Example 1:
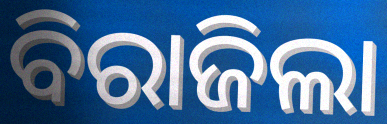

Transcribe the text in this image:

ବିରାଜିଲା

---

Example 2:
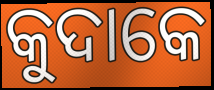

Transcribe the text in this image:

କୁଦାକେ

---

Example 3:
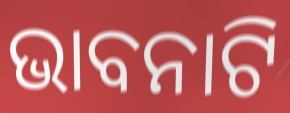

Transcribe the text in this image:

ଭାବନାଟି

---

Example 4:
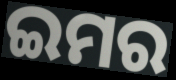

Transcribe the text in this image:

ଇମର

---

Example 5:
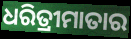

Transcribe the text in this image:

ଧରିତ୍ରୀମାତାର